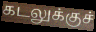
கடலுக்குச்